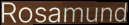
Rosamund